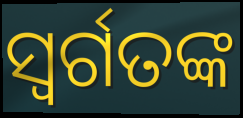
ସ୍ୱର୍ଗତଙ୍କ